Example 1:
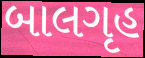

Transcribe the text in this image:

બાલગૃહ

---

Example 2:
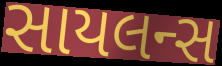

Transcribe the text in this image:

સાયલન્સ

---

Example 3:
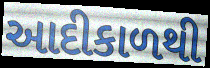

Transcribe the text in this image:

આદીકાળથી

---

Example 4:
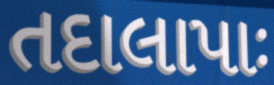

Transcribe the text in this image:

તદાલાપાઃ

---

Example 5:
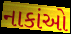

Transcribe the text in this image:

નાકાંઓ